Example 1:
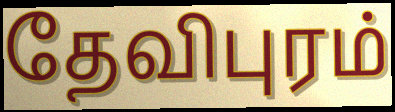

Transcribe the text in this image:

தேவிபுரம்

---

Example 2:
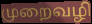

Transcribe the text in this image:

முறைவழி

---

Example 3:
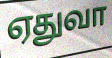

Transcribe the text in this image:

ஏதுவா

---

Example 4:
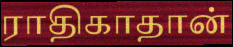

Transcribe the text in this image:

ராதிகாதான்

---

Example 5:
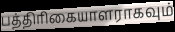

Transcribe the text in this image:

பத்திரிகையாளராகவும்